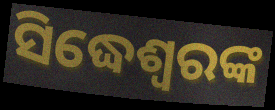
ସିଦ୍ଧେଶ୍ୱରଙ୍କ